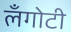
लँगोटी